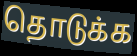
தொடுக்க